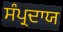
ਸੰਪ੍ਰਦਾਯ